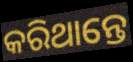
କରିଥାନ୍ତେ